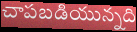
చాపబడియున్నది